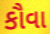
કૌવા